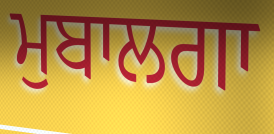
ਮੁਬਾਲਗਾ